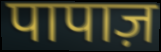
पापाज़